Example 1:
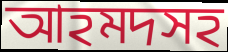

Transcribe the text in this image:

আহমদসহ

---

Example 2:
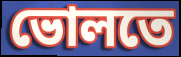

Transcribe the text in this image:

ভোলতে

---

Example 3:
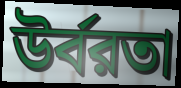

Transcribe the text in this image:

উর্বরতা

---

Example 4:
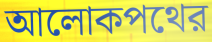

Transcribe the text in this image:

আলোকপথের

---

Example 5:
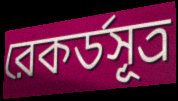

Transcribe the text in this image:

রেকর্ডসূত্র